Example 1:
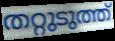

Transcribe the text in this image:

തറ്റുടുത്ത്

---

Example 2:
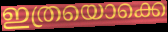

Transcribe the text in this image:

ഇത്രയൊക്കെ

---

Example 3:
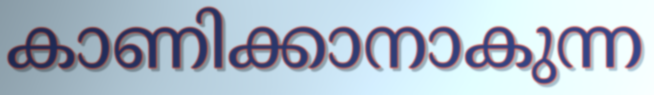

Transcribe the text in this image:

കാണിക്കാനാകുന്ന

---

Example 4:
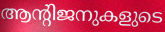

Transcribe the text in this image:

ആന്റിജനുകളുടെ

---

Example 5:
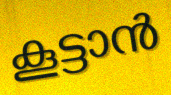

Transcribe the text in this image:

കൂട്ടാൻ